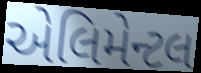
એલિમેન્ટલ